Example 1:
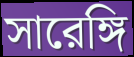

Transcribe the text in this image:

সারেঙ্গি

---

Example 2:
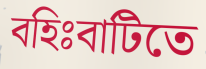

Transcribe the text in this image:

বহিঃবাটিতে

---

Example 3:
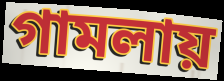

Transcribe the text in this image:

গামলায়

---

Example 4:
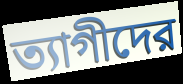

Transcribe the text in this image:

ত্যাগীদের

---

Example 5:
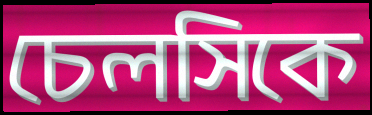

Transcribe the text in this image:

চেলসিকে